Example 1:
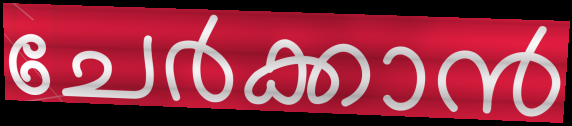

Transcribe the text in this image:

ചേർക്കാൻ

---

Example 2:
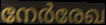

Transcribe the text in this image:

നേർരേഖ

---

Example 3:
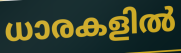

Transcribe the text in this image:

ധാരകളിൽ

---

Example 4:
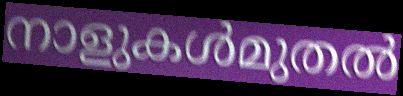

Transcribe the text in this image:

നാളുകൾമുതൽ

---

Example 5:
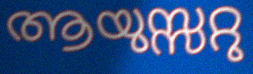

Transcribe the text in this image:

ആയുസ്സറ്റു